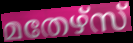
മതേഴ്സ്